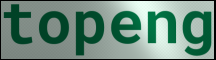
topeng